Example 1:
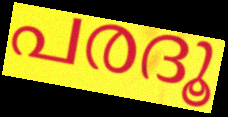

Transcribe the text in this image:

പരദൂ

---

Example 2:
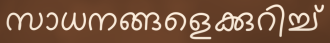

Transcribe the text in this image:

സാധനങ്ങളെക്കുറിച്ച്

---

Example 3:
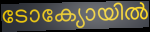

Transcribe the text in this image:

ടോക്യോയിൽ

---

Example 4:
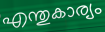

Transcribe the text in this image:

എന്തുകാര്യം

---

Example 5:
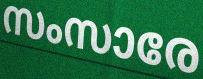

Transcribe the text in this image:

സംസാരേ